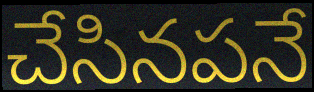
చేసినపనే